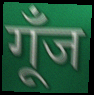
गूँज